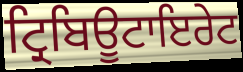
ਟ੍ਰਿਬਿਊਟਾਇਰੇਟ